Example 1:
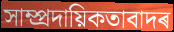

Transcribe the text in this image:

সাম্প্ৰদায়িকতাবাদৰ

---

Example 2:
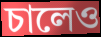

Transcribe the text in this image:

চালেও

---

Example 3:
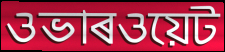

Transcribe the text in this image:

ওভাৰওয়েট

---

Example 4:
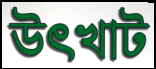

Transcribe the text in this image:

উৎখাট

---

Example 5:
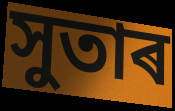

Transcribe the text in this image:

সুতাৰ